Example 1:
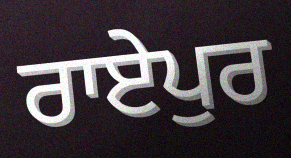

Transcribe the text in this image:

ਰਾਏਪੁਰ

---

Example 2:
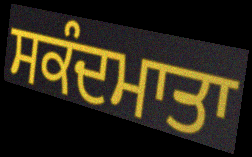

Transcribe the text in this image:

ਸਕੰਦਮਾਤਾ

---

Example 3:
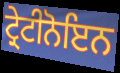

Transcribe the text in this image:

ਟ੍ਰੇਟੀਨੋਇਨ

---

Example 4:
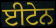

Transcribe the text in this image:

ਈਟੇਨ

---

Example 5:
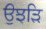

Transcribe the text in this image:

ਉਝੜਿ